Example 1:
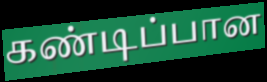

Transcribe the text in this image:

கண்டிப்பான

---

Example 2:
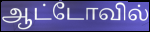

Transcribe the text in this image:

ஆட்டோவில்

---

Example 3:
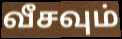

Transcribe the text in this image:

வீசவும்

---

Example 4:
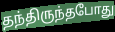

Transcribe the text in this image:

தந்திருந்தபோது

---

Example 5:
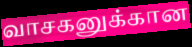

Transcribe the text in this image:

வாசகனுக்கான